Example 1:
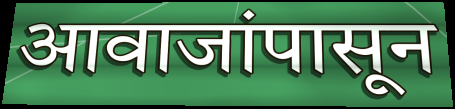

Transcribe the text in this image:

आवाजांपासून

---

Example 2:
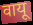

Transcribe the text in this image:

वायू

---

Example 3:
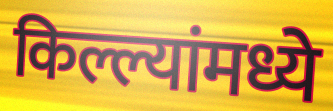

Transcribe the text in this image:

किल्ल्यांमध्ये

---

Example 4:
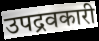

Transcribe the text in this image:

उपद्रवकारी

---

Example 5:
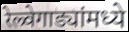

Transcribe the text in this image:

रेल्वेगाड्यांमध्ये